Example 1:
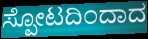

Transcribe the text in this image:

ಸ್ಪೋಟದಿಂದಾದ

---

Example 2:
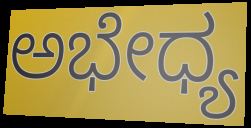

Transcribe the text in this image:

ಅಭೇಧ್ಯ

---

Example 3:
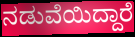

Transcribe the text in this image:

ನಡುವೆಯಿದ್ದಾರೆ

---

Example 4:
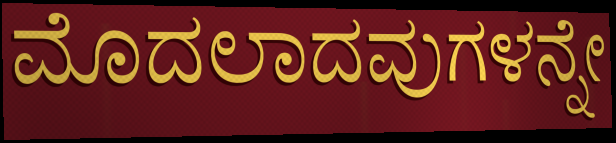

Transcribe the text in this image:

ಮೊದಲಾದವುಗಳನ್ನೇ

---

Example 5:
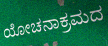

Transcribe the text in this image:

ಯೋಚನಾಕ್ರಮದ